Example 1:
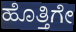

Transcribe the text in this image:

ಹೊತ್ತಿಗೇ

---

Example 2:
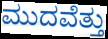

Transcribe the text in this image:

ಮುದವೆತ್ತು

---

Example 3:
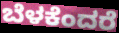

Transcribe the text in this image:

ಬೆಳಕೆಂದರೆ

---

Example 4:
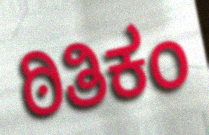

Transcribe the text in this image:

ಠಿತಿಕಂ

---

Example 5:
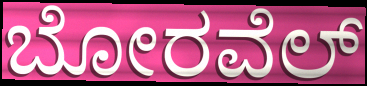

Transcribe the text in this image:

ಬೋರವೆಲ್